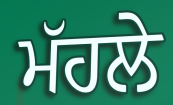
ਮੱਹਲੇ